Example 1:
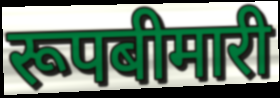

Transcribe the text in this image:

रूपबीमारी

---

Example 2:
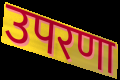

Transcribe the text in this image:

उपरणा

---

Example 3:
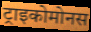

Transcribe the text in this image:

ट्राइकोमोनस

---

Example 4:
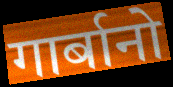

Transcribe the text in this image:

गार्बानो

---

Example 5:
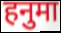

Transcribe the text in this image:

हनुमा